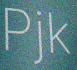
Pjk